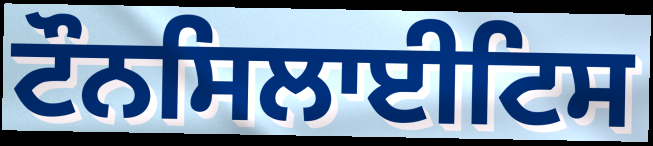
ਟੌਨਸਿਲਾਈਟਿਸ